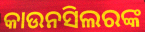
କାଉନସିଲରଙ୍କ